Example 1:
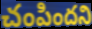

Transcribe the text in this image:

చంపిందని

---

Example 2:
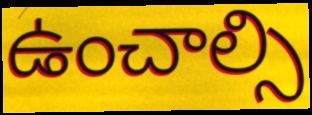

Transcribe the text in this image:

ఉంచాల్సి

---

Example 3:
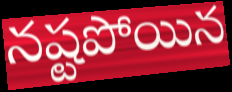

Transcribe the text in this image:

నష్టపోయిన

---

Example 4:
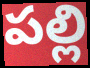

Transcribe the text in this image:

పల్లి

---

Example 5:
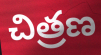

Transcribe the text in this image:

చిత్రణ